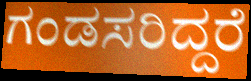
ಗಂಡಸರಿದ್ದರೆ